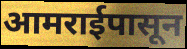
आमराईपासून